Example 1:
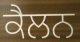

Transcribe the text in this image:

ਕੈਲਨ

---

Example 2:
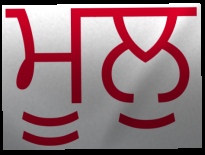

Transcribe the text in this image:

ਮੂਲੁ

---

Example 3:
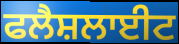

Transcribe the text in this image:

ਫਲੈਸ਼ਲਾਈਟ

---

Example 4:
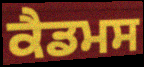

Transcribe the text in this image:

ਕੈਡਮਸ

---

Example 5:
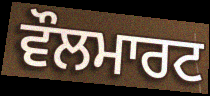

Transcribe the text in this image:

ਵੌਲਮਾਰਟ